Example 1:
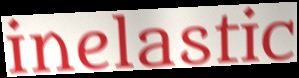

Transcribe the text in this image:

inelastic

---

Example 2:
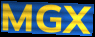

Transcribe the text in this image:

MGX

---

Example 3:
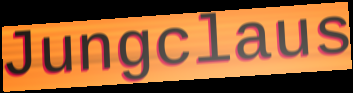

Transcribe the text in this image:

Jungclaus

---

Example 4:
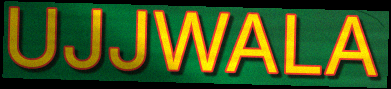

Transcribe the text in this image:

UJJWALA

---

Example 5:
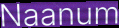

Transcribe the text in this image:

Naanum